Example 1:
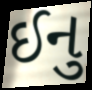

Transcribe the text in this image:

ઈનુ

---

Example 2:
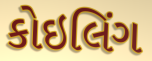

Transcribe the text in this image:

કોઇલિંગ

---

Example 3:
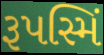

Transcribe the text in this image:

રૂપસ્મિં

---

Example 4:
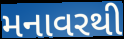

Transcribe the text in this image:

મનાવરથી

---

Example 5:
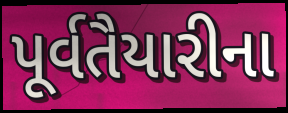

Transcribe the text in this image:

પૂર્વતૈયારીના